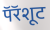
पॅरॅशूट